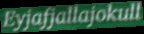
Eyjafjallajokull